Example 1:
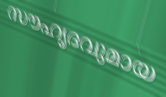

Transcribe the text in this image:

സൗഹൃദവുമായ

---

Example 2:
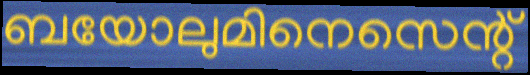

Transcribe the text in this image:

ബയോലുമിനെസെന്റ്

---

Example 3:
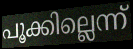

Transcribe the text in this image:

പൂക്കില്ലെന്ന്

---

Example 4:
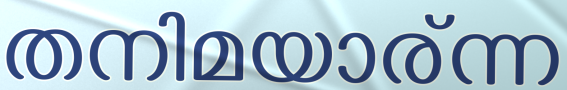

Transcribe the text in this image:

തനിമയാര്ന്ന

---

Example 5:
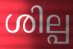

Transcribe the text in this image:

ശില്പ